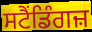
ਸਟੈਂਡਿੰਗਜ਼